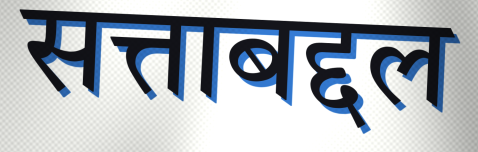
सत्ताबद्दल